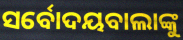
ସର୍ବୋଦୟବାଲାଙ୍କୁ